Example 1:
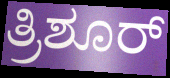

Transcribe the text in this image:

ತ್ರಿಶೂರ್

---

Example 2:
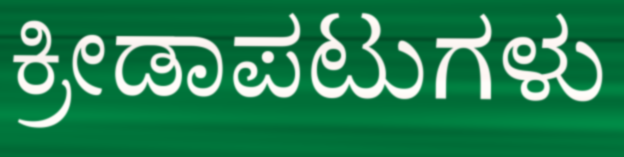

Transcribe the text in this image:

ಕ್ರೀಡಾಪಟುಗಳು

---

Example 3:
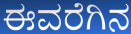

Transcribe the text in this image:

ಈವರೆಗಿನ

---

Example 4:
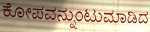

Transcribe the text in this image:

ಕೋಪವನ್ನುಂಟುಮಾಡಿದ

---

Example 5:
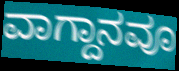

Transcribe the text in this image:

ವಾಗ್ದಾನವೂ